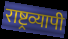
राष्ट्रव्यापी